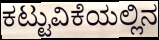
ಕಟ್ಟುವಿಕೆಯಲ್ಲಿನ